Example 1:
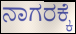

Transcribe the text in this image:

ನಾಗರಕ್ಕೆ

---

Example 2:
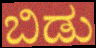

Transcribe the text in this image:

ಬಿಡು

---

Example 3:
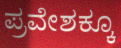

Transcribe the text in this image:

ಪ್ರವೇಶಕ್ಕೂ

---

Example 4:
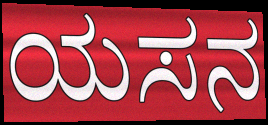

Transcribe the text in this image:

ಯಸನ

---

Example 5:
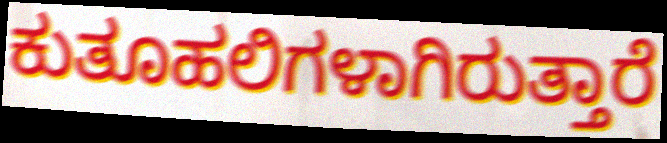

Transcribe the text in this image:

ಕುತೂಹಲಿಗಳಾಗಿರುತ್ತಾರೆ